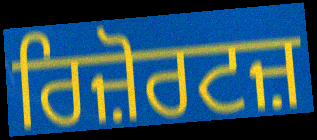
ਰਿਜ਼ੋਰਟਜ਼